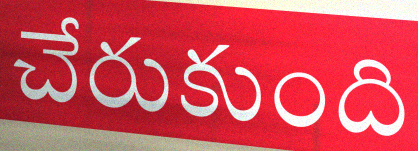
చేరుకుంది